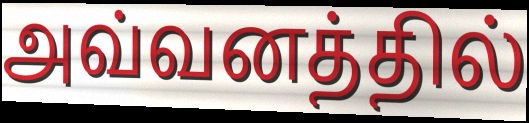
அவ்வனத்தில்